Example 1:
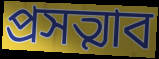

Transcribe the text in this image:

প্রসত্মাব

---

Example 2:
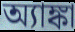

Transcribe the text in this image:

অ্যাঙ্কা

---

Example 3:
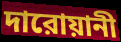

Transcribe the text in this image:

দারোয়ানী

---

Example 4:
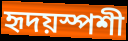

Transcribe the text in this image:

হৃদয়স্পশী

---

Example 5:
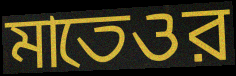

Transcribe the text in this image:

মাতেওর